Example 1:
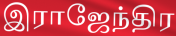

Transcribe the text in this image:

இராஜேந்திர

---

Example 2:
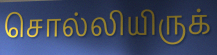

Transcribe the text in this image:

சொல்லியிருக்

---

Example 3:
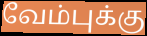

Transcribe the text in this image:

வேம்புக்கு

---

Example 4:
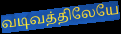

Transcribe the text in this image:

வடிவத்திலேயே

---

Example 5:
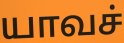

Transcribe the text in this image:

யாவச்